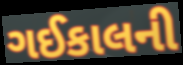
ગઈકાલની